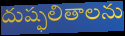
దుష్ఫలితాలను